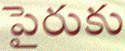
పైరుకు